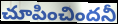
చూపించిందనీ